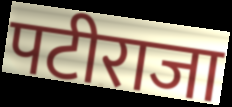
पटीराजा